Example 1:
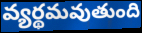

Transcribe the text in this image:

వ్యర్థమవుతుంది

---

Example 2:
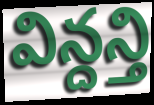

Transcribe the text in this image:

విన్దన్తి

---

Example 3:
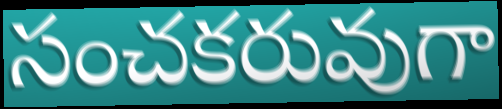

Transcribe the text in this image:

సంచకరువుగా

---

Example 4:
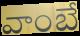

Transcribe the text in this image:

వాంబే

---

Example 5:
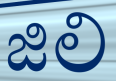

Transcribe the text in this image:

జిలి